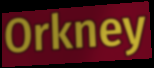
Orkney